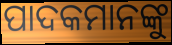
ପାଦକମାନଙ୍କୁ